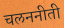
चलननीती